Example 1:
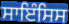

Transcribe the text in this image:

ਸਾਇੰਸਿਸ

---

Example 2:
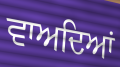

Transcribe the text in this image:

ਵਾਅਦਿਆਂ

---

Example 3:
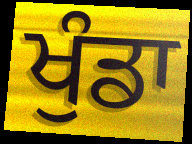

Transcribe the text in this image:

ਖੁੰਡਾ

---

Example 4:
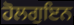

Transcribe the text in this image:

ਹੋਲਗੁਇਨ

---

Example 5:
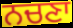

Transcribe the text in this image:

ਨਚਣਾ